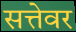
सत्तेवर